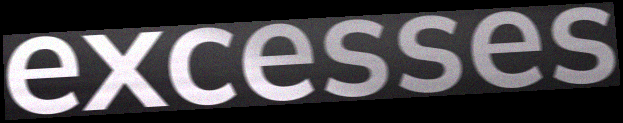
excesses